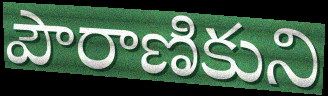
పౌరాణికుని